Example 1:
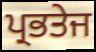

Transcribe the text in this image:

ਪ੍ਰਭਤੇਜ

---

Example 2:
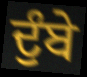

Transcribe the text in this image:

ਦੁੰਬੇ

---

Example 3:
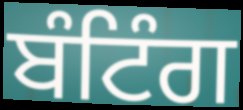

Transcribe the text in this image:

ਬੰਟਿੰਗ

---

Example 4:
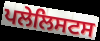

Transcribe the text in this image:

ਪਲੇਲਿਸਟਸ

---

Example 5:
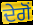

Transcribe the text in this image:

ਦੇਗੋਂ